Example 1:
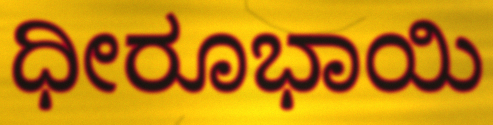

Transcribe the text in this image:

ಧೀರೂಭಾಯಿ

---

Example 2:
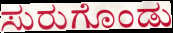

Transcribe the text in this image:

ಸುರುಗೊಂಡು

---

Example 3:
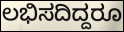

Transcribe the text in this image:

ಲಭಿಸದಿದ್ದರೂ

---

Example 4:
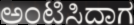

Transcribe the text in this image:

ಅಂಟಿಸಿದಾಗ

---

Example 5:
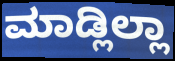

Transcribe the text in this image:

ಮಾಡ್ಲಿಲ್ಲಾ